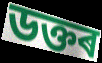
ডক্তৰ